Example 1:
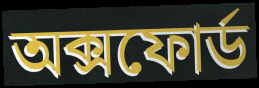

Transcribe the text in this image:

অক্সফোর্ড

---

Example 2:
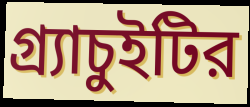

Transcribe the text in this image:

গ্র্যাচুইটির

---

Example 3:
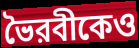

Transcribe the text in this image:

ভৈরবীকেও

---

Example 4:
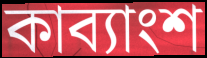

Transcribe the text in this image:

কাব্যাংশ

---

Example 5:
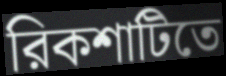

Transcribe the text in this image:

রিকশাটিতে